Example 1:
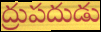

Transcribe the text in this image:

ద్రుపదుడు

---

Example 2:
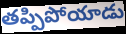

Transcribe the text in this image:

తప్పిపోయాడు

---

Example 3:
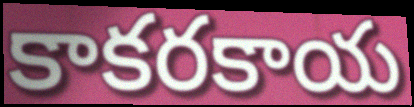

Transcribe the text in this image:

కాకరకాయ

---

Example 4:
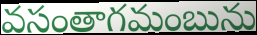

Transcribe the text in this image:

వసంతాగమంబును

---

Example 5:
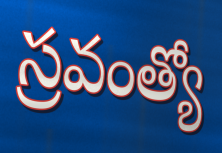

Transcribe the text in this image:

స్రవంత్యో